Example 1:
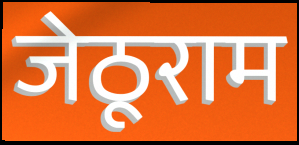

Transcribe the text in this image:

जेठूराम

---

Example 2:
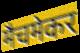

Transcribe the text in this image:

मैचमेकर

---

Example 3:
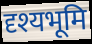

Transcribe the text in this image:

दृश्यभूमि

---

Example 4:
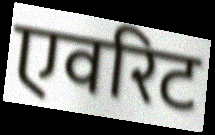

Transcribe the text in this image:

एवरिट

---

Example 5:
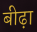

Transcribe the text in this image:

बीढ़ा